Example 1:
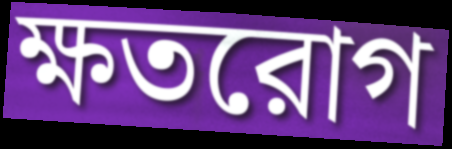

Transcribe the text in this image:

ক্ষতরোগ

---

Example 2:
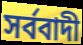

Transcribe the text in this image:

সর্ববাদী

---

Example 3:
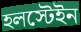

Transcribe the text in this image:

হলস্টেইন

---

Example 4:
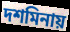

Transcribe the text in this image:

দশমিনায়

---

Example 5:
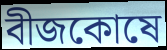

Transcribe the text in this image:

বীজকোষে